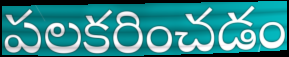
పలకరించడం